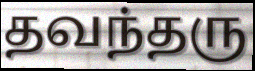
தவந்தரு